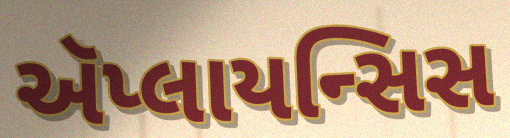
ઍપ્લાયન્સિસ